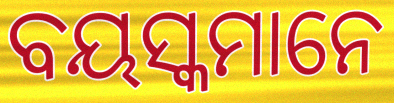
ବୟସ୍କମାନେ